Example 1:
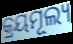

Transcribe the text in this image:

କ୍ରୟମୂଲ୍ୟ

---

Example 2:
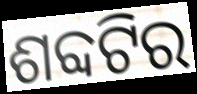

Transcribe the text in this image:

ଶବ୍ଦଟିର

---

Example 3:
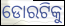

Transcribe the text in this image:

ଡୋରଟିକୁ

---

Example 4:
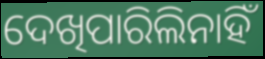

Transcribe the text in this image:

ଦେଖିପାରିଲିନାହିଁ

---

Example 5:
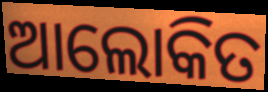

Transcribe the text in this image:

ଆଲୋକିତ